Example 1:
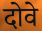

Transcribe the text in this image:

दोवे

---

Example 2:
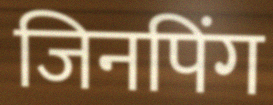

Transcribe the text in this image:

जिनपिंग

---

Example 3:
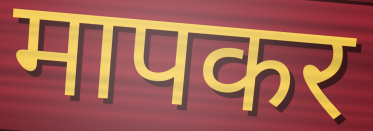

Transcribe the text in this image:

मापकर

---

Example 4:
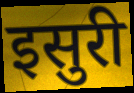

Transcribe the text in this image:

इसुरी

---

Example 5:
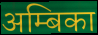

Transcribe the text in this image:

अम्बिका